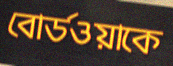
বোর্ডওয়াকে